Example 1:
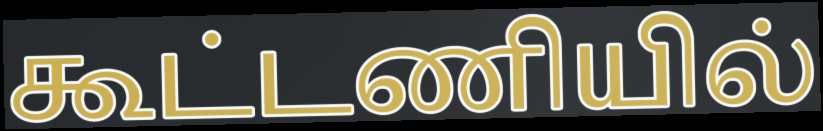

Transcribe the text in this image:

கூட்டணியில்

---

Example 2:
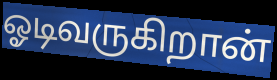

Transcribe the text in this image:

ஓடிவருகிறான்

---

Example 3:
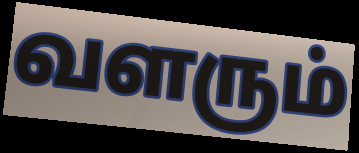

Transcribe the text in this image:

வளரும்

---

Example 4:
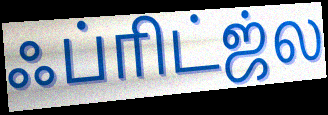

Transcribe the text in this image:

ஃப்ரிட்ஜ்ல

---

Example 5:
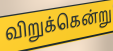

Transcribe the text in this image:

விறுக்கென்று